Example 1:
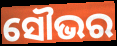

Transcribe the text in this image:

ସୌଭର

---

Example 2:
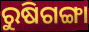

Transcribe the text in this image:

ରୁଷିଗଙ୍ଗା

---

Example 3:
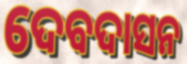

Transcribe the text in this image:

ଦେବଦାସନ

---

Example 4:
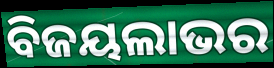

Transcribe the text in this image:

ବିଜୟଲାଭର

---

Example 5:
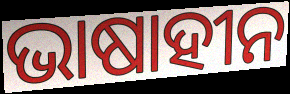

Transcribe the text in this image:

ଭାଷାହୀନ